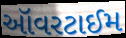
ઑવરટાઈમ